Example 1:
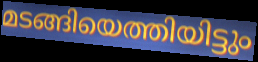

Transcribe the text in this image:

മടങ്ങിയെത്തിയിട്ടും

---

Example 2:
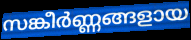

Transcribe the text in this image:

സങ്കീർണ്ണങ്ങളായ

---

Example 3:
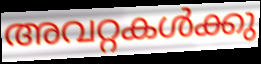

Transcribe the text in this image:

അവറ്റകൾക്കു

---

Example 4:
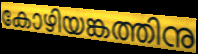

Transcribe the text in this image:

കോഴിയങ്കത്തിനു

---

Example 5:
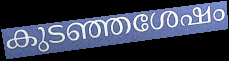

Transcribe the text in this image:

കുടഞ്ഞശേഷം